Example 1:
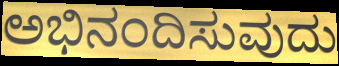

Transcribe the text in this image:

ಅಭಿನಂದಿಸುವುದು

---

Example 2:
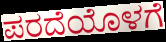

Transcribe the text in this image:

ಪರದೆಯೊಳಗೆ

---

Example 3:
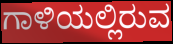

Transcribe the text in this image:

ಗಾಳಿಯಲ್ಲಿರುವ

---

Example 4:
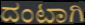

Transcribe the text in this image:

ದಂಟಾಗಿ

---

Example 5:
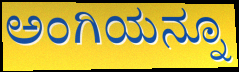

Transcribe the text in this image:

ಅಂಗಿಯನ್ನೂ